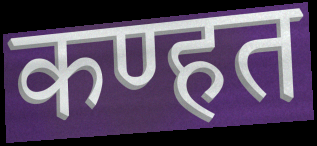
कण्हत